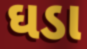
ઘડા